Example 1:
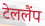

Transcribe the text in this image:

टेललैंप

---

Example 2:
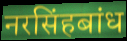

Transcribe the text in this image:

नरसिंहबांध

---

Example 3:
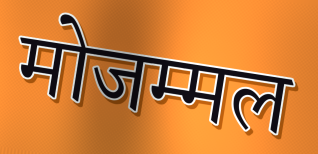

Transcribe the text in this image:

मोजम्मल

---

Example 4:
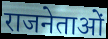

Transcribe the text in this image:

राजनेताओं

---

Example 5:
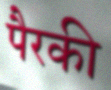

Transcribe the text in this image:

पैरकी